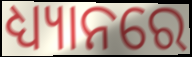
ଧ୍ୟ୍ୟାନରେ